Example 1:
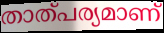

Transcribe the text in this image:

താത്പര്യമാണ്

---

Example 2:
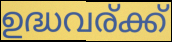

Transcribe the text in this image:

ഉദ്ധവര്ക്ക്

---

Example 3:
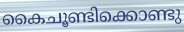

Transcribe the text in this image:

കൈചൂണ്ടിക്കൊണ്ടു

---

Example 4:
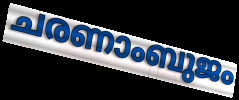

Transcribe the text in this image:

ചരണാംബുജം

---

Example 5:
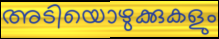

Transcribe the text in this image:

അടിയൊഴുക്കുകളും